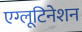
एग्लूटिनेशन